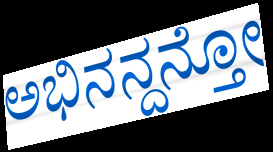
ಅಭಿನನ್ದನ್ತೋ